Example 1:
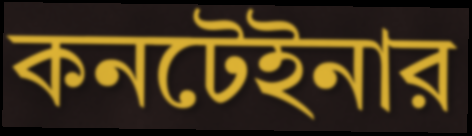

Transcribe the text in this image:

কনটেইনার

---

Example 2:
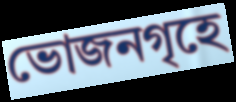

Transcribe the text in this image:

ভোজনগৃহে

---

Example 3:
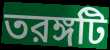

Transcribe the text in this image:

তরঙ্গটি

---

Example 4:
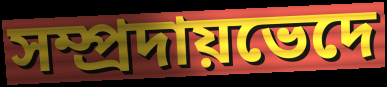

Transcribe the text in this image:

সম্প্রদায়ভেদে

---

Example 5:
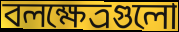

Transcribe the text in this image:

বলক্ষেত্রগুলো